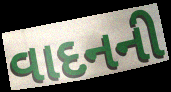
વાદનની